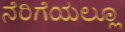
ನೆರಿಗೆಯಲ್ಲೂ